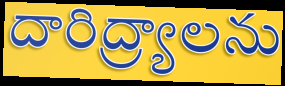
దారిద్ర్యాలను